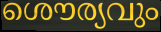
ശൌര്യവും